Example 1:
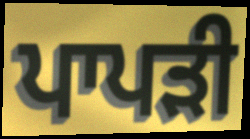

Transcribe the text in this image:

ਪਾਪੜੀ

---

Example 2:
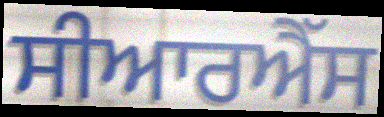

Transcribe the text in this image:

ਸੀਆਰਐੱਸ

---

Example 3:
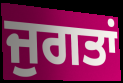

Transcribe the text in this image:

ਜੁਗਤਾਂ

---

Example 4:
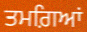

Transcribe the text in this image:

ਤਮਗ਼ਿਆਂ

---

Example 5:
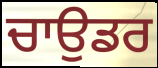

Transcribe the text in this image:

ਚਾਉਡਰ